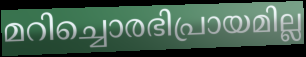
മറിച്ചൊരഭിപ്രായമില്ല